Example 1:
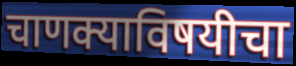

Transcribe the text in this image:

चाणक्याविषयीचा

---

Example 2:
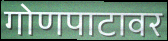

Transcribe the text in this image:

गोणपाटावर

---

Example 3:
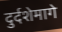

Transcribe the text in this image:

दुर्दशेमागे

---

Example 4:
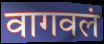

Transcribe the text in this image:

वागवलं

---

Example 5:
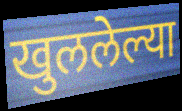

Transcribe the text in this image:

खुललेल्या